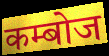
कम्बोज